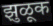
झुळूक